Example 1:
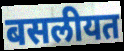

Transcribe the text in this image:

बसलीयत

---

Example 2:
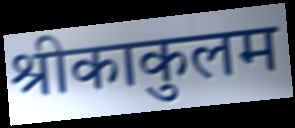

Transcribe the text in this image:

श्रीकाकुलम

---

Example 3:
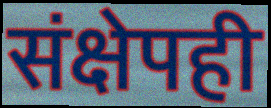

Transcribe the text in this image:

संक्षेपही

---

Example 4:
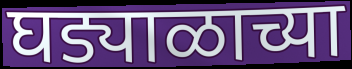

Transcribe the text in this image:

घड्याळाच्या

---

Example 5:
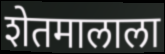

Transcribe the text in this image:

शेतमालाला